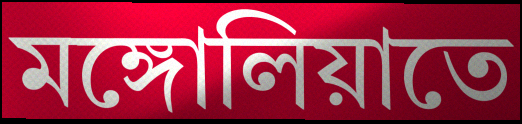
মঙ্গোলিয়াতে